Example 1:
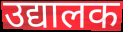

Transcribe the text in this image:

उद्यालक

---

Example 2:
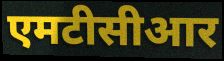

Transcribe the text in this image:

एमटीसीआर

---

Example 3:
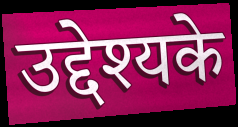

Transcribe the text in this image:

उद्देश्यके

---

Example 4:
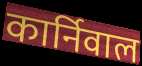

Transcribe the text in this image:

कार्निवाल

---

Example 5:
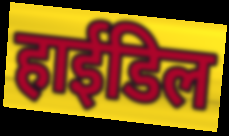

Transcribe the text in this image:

हाईडिल